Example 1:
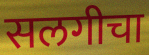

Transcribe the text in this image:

सलगीचा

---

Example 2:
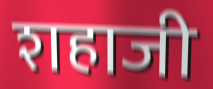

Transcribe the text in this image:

शहाजी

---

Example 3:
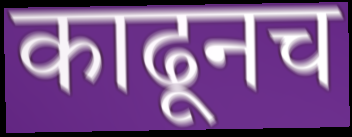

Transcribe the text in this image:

काढूनच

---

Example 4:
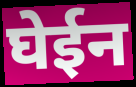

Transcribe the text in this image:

घेईन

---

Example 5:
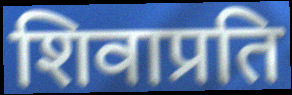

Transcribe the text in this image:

शिवाप्रति